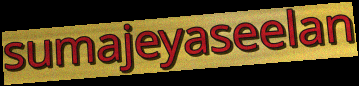
sumajeyaseelan